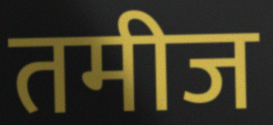
तमीज